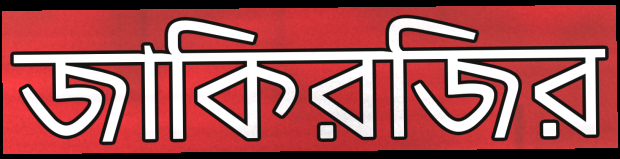
জাকিরজির